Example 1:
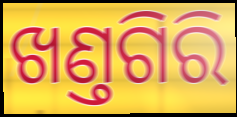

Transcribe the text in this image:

ଖଣ୍ତଗିରି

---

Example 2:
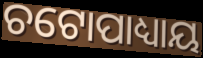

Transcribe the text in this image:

ଚଟୋପାଧ୍ୟାୟ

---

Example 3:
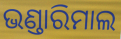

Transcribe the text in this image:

ଭଣ୍ଡାରିମାଲ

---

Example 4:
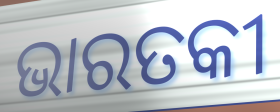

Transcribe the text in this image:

ଭାରତକୀ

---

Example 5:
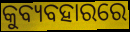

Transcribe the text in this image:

କୁବ୍ୟବହାରରେ